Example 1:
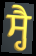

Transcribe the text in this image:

ਸ੍ਹੈ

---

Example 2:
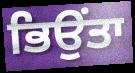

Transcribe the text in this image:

ਭਿਉਂਤਾ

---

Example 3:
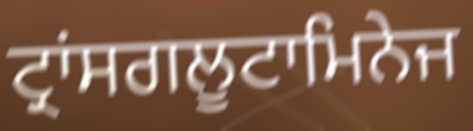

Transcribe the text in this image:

ਟ੍ਰਾਂਸਗਲੂਟਾਮਿਨੇਜ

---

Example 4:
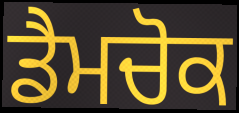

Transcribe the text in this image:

ਡੈਮਚੋਕ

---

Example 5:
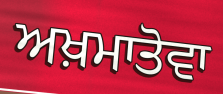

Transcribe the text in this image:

ਅਖ਼ਮਾਤੋਵਾ